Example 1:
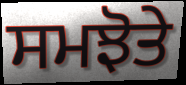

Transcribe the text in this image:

ਸਮਝੋਤੇ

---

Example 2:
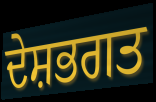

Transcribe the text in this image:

ਦੇਸ਼ਭਗਤ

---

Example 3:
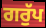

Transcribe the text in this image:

ਗਰੁੱਪ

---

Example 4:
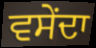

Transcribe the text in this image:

ਵਸੇਂਦਾ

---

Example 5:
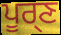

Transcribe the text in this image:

ਪੂਰ੍ਣ